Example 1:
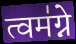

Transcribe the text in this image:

त्वम॑ग्ने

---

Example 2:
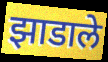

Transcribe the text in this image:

झाडाले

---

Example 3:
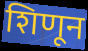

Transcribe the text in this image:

शिणून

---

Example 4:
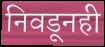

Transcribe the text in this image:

निवडूनही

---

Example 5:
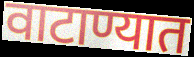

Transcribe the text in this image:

वाटाण्यात